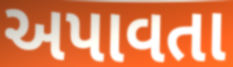
અપાવતા